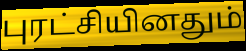
புரட்சியினதும்